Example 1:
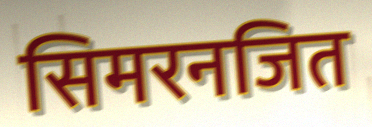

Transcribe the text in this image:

सिमरनजित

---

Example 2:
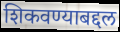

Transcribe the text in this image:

शिकवण्याबद्दल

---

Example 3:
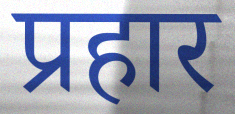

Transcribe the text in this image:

प्रहार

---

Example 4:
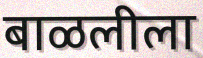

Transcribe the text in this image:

बाळलीला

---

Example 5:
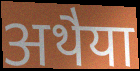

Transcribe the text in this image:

अथैया